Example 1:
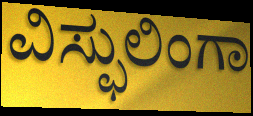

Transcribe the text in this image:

ವಿಸ್ಫುಲಿಂಗಾ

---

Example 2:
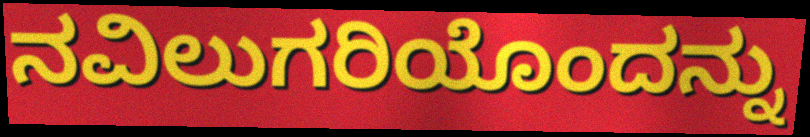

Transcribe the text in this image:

ನವಿಲುಗರಿಯೊಂದನ್ನು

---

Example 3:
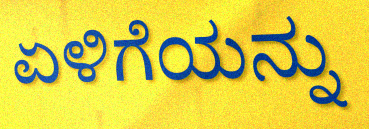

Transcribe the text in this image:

ಏಳಿಗೆಯನ್ನು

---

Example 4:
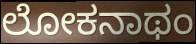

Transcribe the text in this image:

ಲೋಕನಾಥಂ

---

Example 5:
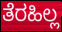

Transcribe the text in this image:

ತೆರಹಿಲ್ಲ